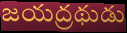
జయద్రథుడు